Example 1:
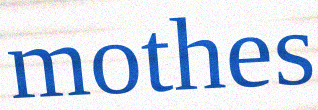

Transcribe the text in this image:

mothes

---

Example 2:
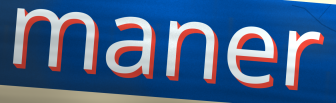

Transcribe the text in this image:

maner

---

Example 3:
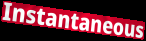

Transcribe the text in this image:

Instantaneous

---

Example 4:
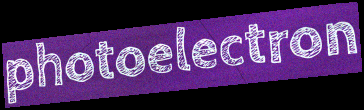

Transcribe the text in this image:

photoelectron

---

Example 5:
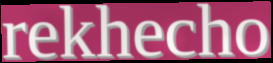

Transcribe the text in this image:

rekhecho